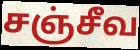
சஞ்சீவ